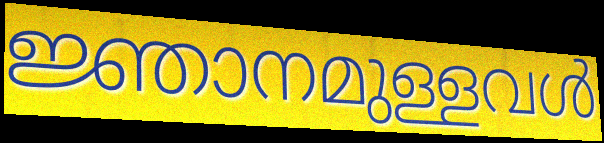
ജ്ഞാനമുള്ളവൾ